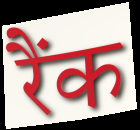
रैंक